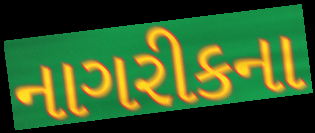
નાગરીકના